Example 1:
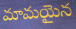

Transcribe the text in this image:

మామయైన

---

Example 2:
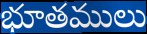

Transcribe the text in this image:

భూతములు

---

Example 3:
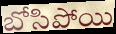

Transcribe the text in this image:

బోసిపోయి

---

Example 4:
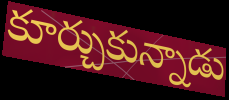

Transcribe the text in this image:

కూర్చుకున్నాడు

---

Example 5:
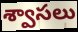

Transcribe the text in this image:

శ్వాసలు